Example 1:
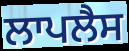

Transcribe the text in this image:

ਲਾਪਲੈਸ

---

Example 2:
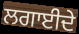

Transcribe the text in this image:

ਲਗਾਈਦੇ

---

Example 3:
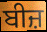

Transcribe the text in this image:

ਬੀਜ਼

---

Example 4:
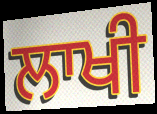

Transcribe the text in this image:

ਲਾਖੀ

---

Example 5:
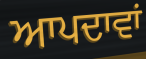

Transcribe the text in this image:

ਆਪਦਾਵਾਂ